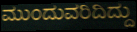
ಮುಂದುವರಿದಿದ್ದು